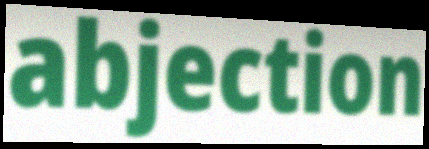
abjection